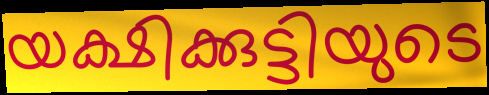
യക്ഷിക്കുട്ടിയുടെ